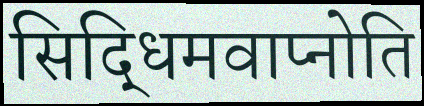
सिद्धिमवाप्नोति